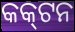
କକ୍‌ଟନ